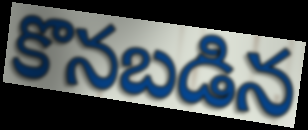
కొనబడిన